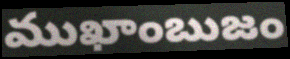
ముఖాంబుజం